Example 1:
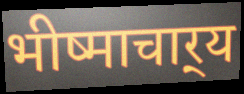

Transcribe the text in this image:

भीष्माचार्य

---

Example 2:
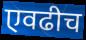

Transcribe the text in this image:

एवढीच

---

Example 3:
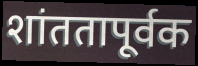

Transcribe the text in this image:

शांततापूर्वक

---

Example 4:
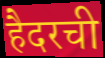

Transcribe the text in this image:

हैदरची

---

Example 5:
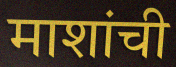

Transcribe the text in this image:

माशांची